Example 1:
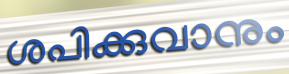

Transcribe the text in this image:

ശപിക്കുവാനും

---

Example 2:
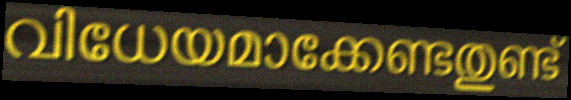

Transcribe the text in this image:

വിധേയമാക്കേണ്ടതുണ്ട്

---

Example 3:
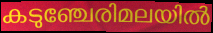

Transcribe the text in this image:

കടുഞ്ചേരിമലയിൽ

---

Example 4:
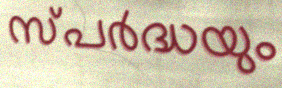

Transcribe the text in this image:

സ്പർദ്ധയും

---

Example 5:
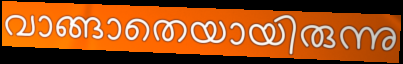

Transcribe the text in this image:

വാങ്ങാതെയായിരുന്നു